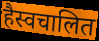
हैस्वचालित